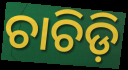
ଚାଚିଡ଼ି